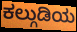
ಕಲ್ಗುಡಿಯ